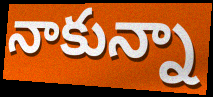
నాకున్నా